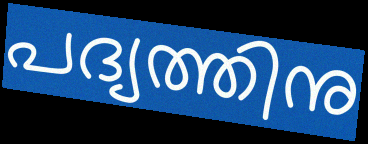
പദ്യത്തിനു